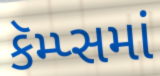
કૅમ્પ્સમાં